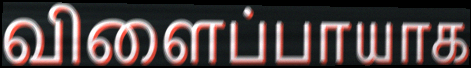
விளைப்பாயாக